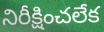
నిరీక్షించలేక